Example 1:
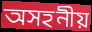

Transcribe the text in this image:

অসহনীয়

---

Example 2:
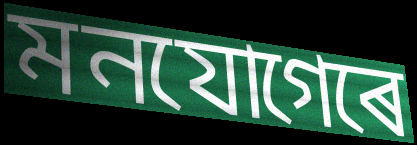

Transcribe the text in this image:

মনযোগেৰে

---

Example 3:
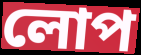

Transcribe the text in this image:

লোপ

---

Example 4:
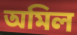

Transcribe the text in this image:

অমিল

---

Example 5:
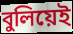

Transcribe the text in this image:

বুলিয়েই